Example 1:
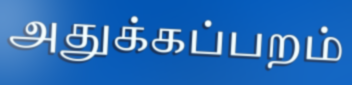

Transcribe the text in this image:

அதுக்கப்பறம்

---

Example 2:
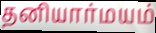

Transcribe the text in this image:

தனியார்மயம்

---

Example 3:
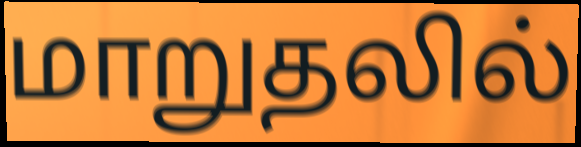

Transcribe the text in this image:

மாறுதலில்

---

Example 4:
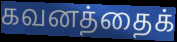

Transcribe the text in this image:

கவனத்தைக்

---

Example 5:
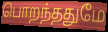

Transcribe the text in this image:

பொறந்ததுமே